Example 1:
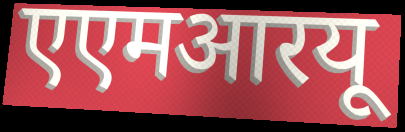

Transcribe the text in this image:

एएमआरयू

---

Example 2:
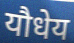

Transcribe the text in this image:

यौधेय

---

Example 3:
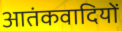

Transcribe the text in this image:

आतंकवादियों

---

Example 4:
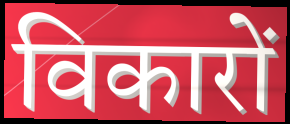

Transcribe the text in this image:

विकारों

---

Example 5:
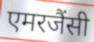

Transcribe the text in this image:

एमरजैंसी